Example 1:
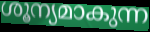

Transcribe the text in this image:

ശൂന്യമാകുന്ന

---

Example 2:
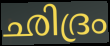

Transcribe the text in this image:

ഛിദ്രം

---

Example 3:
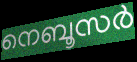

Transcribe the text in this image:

നെബൂസർ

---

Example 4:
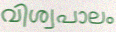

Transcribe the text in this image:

വിശ്വപാലം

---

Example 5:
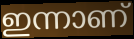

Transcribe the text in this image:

ഇന്നാണ്